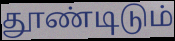
தூண்டிடும்